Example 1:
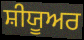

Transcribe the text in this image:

ਸ਼ੀਯੂਅਰ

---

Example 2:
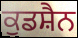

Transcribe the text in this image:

ਕੁਡਸ਼ੈਨ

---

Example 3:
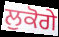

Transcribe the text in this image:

ਲੁਕੋਗੇ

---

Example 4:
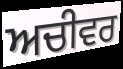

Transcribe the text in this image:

ਅਚੀਵਰ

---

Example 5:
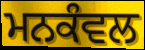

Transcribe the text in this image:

ਮਨਕੰਵਲ